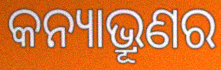
କନ୍ୟାଭ୍ରୂଣର